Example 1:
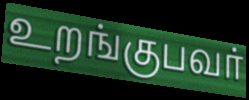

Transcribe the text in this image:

உறங்குபவர்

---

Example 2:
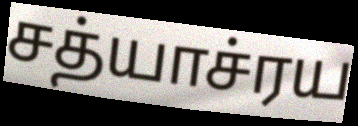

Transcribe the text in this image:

சத்யாச்ரய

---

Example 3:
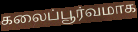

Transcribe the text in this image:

கலைப்பூர்வமாக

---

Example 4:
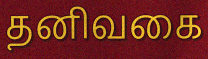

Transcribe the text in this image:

தனிவகை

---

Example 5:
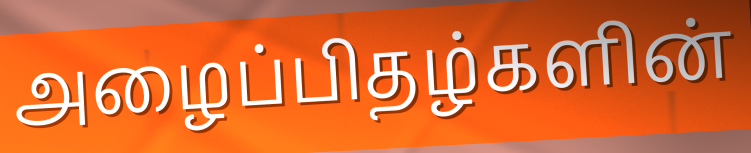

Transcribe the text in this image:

அழைப்பிதழ்களின்